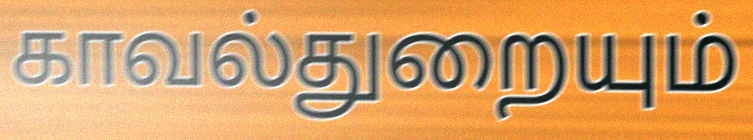
காவல்துறையும்